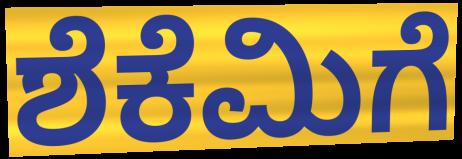
ಶೆಕೆಮಿಗೆ